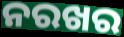
ନରଖର